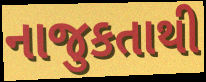
નાજુકતાથી